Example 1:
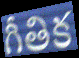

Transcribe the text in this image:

గీతిక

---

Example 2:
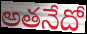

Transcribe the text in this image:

అతనేదో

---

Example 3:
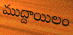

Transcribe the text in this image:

ముద్దాయిలం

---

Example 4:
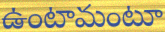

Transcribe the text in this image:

ఉంటామంటూ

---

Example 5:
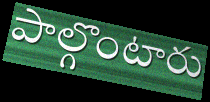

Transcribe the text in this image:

పాల్గొంటారు